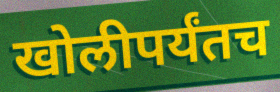
खोलीपर्यंतच